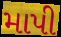
માપી